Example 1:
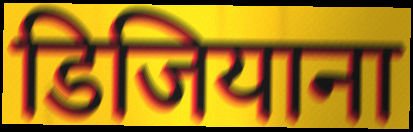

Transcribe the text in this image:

डिजियाना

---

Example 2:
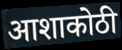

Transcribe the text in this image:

आशाकोठी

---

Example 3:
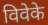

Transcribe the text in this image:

विवेके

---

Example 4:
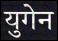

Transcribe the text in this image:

युगेन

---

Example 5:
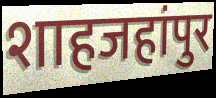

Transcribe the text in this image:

शाहजहांपुर